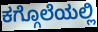
ಕಗ್ಗೊಲೆಯಲ್ಲಿ